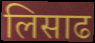
लिसाढ